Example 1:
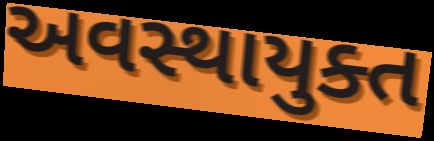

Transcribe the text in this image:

અવસ્થાયુક્ત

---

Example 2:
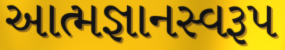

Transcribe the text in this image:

આત્મજ્ઞાનસ્વરૂપ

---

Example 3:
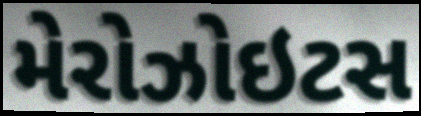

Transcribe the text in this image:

મેરોઝોઇટસ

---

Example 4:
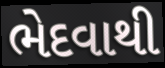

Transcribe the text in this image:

ભેદવાથી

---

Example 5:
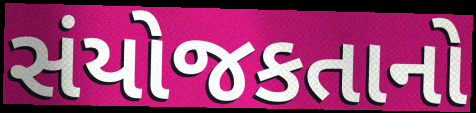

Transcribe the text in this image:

સંયોજકતાનો